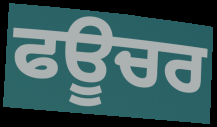
ਫਊਚਰ